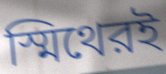
স্মিথেরই